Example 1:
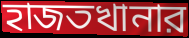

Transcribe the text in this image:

হাজতখানার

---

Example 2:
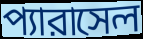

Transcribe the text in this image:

প্যারাসেল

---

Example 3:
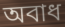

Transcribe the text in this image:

অবাধ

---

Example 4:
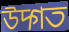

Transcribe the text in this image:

উদ্গত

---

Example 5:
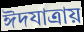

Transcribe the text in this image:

ঈদযাত্রায়